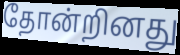
தோன்றினது